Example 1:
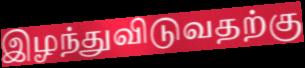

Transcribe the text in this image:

இழந்துவிடுவதற்கு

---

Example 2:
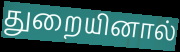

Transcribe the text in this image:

துறையினால்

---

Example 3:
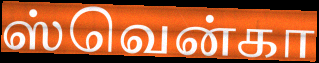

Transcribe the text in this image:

ஸ்வென்கா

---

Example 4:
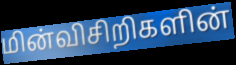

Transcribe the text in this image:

மின்விசிறிகளின்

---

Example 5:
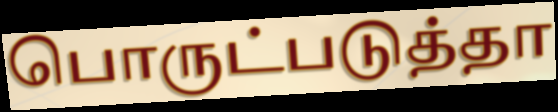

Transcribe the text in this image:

பொருட்படுத்தா